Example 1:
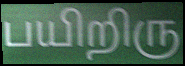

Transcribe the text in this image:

பயிறிரு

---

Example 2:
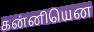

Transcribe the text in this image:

கன்னியென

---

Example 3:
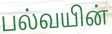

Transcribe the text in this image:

பல்வயின்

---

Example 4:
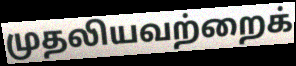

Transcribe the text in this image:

முதலியவற்றைக்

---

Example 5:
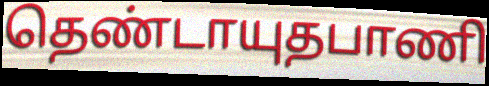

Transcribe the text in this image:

தெண்டாயுதபாணி